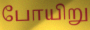
போயிறு